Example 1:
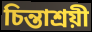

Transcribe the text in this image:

চিন্তাশ্রয়ী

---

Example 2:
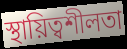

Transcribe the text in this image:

স্থায়িত্বশীলতা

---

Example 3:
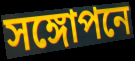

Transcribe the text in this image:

সঙ্গোপনে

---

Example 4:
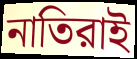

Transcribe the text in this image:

নাতিরাই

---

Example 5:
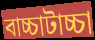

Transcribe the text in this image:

বাচ্চাটাচ্চা